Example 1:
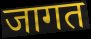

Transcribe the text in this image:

जागत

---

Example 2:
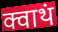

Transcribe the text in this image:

क्वाथं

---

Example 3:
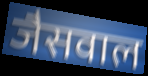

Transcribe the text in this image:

जैसवाल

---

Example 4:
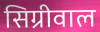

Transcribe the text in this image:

सिग्रीवाल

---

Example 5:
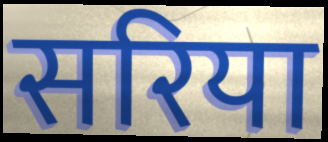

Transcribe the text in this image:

सरिया